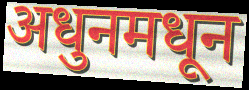
अधुनमधून